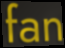
fan